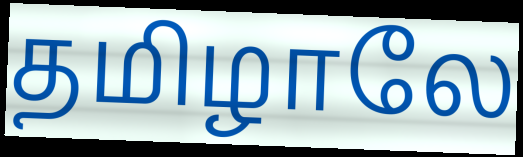
தமிழாலே